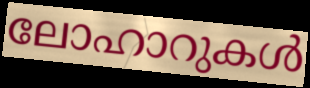
ലോഹാറുകൾ